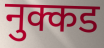
नुक्कड